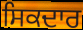
ਸਿਕਦਾਰ